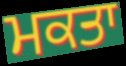
ਮਕਤਾ